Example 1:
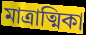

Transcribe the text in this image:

মাত্রাত্মিকা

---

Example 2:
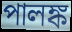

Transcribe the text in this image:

পালঙ্ক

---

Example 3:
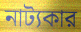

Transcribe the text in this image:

নাট্যকার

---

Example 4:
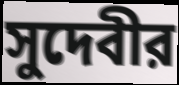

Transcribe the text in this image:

সুদেবীর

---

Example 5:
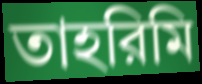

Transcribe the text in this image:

তাহরিমি